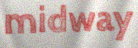
midway